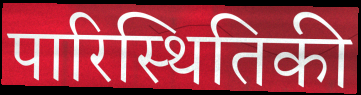
पारिस्थितिकी